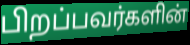
பிறப்பவர்களின்